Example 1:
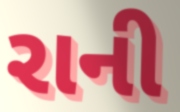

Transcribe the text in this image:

રાની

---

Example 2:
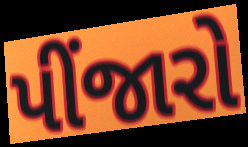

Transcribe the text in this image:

પીંજારો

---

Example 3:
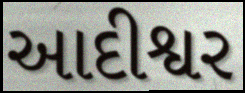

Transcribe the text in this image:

આદીશ્વર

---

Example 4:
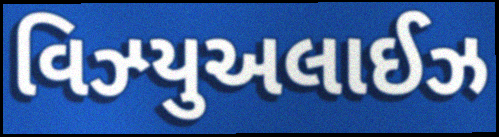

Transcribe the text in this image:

વિઝ્યુઅલાઈઝ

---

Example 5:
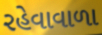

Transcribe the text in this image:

રહેવાવાળા